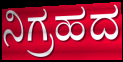
ನಿಗ್ರಹದ